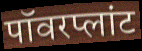
पॉवरप्लांट